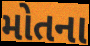
મોતના